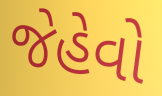
જેહેવો